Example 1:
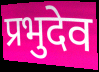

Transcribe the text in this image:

प्रभुदेव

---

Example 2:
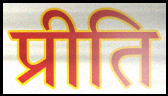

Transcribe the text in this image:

प्रीति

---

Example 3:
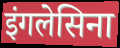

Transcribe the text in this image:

इंगलेसिना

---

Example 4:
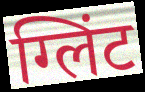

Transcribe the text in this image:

ग्लिंट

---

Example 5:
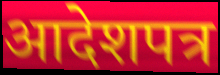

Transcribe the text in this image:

आदेशपत्र